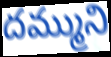
దమ్ముని